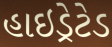
હાઇડ્રેટેડ